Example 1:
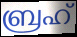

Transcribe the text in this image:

ബ്രഹ്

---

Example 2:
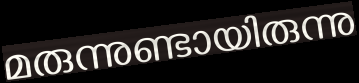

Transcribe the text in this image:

മരുന്നുണ്ടായിരുന്നു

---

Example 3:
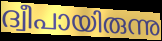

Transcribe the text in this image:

ദ്വീപായിരുന്നു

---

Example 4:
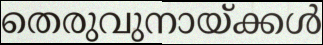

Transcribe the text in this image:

തെരുവുനായ്ക്കൾ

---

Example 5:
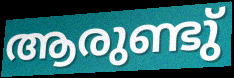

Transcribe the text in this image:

ആരുണ്ടു്